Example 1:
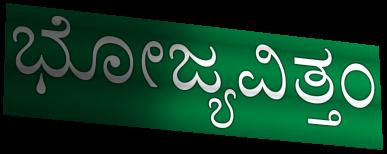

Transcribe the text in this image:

ಭೋಜ್ಯವಿತ್ತಂ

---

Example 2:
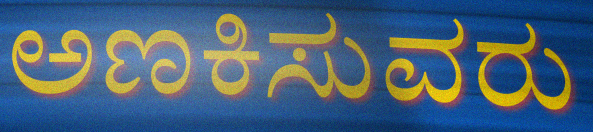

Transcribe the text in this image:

ಅಣಕಿಸುವರು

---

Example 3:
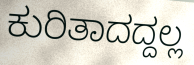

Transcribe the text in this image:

ಕುರಿತಾದದ್ದಲ್ಲ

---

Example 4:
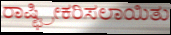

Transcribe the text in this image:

ರಾಷ್ಟ್ರೀಕರಿಸಲಾಯಿತು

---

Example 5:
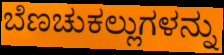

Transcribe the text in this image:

ಬೆಣಚುಕಲ್ಲುಗಳನ್ನು